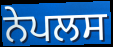
ਨੇਪਲਸ